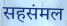
सहसंमल